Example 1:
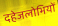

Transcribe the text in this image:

दहेजलोभियों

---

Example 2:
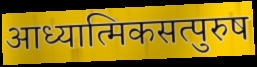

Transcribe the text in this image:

आध्यात्मिकसत्पुरुष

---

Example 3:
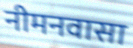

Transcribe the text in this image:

नीमनवासा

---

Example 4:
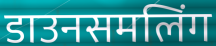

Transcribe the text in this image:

डाउनसमलिंग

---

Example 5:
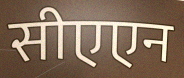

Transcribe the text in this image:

सीएएन